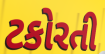
ટકોરતી